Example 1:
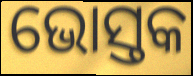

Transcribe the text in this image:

ଭୋସ୍ତକ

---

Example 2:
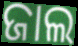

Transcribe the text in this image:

ଜାଲ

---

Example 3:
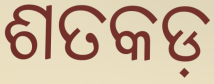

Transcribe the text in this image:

ଶତକଡ଼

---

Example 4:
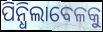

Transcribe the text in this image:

ପିନ୍ଧିଲାବେଳକୁ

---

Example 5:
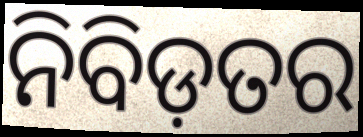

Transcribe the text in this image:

ନିବିଡ଼ତର